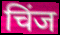
चिंज